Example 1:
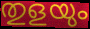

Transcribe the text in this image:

തുളയും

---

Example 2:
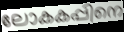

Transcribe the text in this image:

ലോകകപ്പിനെ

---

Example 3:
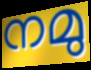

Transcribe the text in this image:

നമു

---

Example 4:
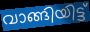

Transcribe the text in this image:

വാങ്ങിയിട്ട്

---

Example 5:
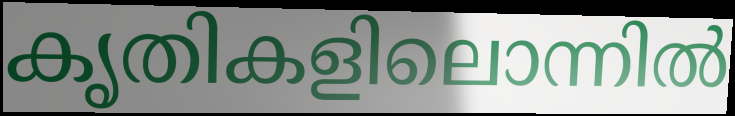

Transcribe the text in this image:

കൃതികളിലൊന്നിൽ